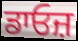
ਡਾਓਜ਼